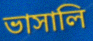
ভাসালি